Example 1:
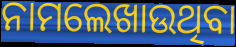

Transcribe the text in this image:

ନାମଲେଖାଉଥିବା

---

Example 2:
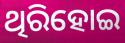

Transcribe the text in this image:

ଥିରିହୋଇ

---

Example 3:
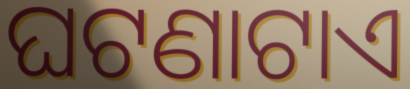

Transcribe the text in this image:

ଘଟଣାଟାଏ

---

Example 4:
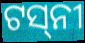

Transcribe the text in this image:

ଟସ୍‌ନୀ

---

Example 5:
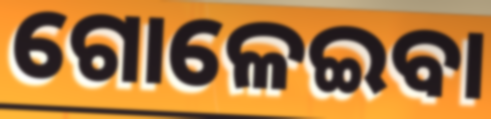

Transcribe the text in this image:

ଗୋଳେଇବା